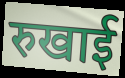
रुखाई